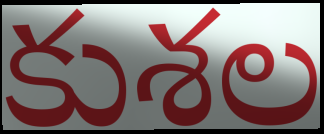
కుశల